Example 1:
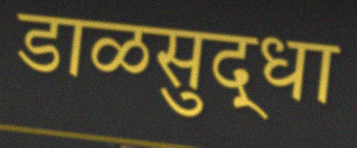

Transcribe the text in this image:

डाळसुद्धा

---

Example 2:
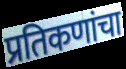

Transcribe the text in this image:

प्रतिकणांचा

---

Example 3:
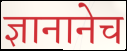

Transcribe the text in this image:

ज्ञानानेच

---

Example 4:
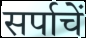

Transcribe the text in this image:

सर्पाचें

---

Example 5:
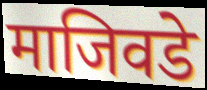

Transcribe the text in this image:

माजिवडे